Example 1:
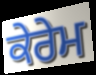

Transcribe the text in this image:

ਕੇਰੇਮ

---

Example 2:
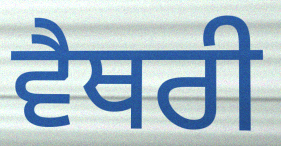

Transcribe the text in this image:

ਵੈਥਰੀ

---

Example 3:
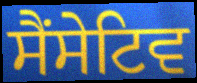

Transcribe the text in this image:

ਸੈਂਸੇਟਿਵ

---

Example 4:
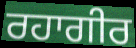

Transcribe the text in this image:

ਰਹਾਗੀਰ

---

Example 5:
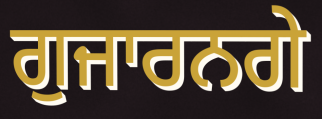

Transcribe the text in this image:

ਗੁਜਾਰਨਗੇ